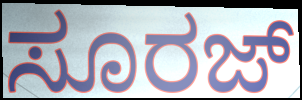
ಸೂರಜ್